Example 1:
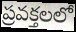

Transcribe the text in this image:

ప్రవక్తలలో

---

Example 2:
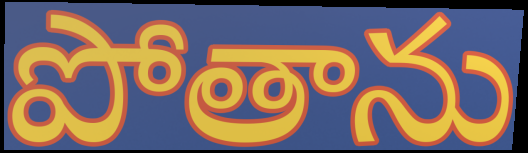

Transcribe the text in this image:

పోతాను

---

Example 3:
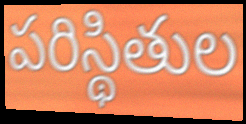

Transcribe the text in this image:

పరిస్థితుల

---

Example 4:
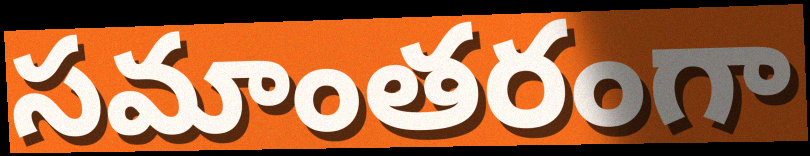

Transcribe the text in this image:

సమాంతరంగా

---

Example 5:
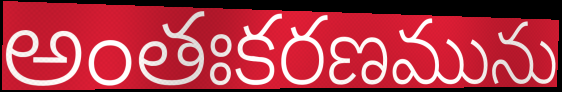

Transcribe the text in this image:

అంతఃకరణమును